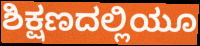
ಶಿಕ್ಷಣದಲ್ಲಿಯೂ